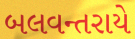
બલવન્તરાયે